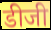
डीजी